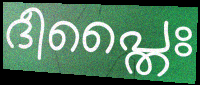
ദീപ്തൈഃ